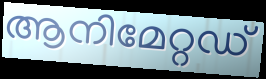
ആനിമേറ്റഡ്